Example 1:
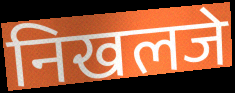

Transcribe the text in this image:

निखलजे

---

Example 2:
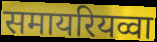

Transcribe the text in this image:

समायरियव्वा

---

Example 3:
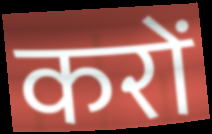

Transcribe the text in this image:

करों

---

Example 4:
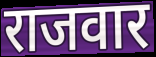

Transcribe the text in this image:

राजवार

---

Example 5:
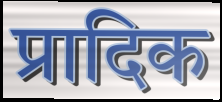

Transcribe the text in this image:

प्रादिक